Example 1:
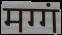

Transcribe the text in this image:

मग्गं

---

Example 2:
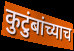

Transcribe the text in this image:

कुटुंबांच्याच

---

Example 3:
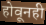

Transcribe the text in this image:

होवूनही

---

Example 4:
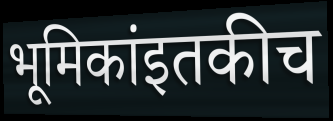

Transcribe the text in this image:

भूमिकांइतकीच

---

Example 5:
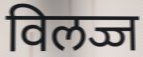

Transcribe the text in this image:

विलज्ज